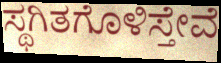
ಸ್ಥಗಿತಗೊಳಿಸ್ತೇವೆ